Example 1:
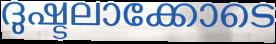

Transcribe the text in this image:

ദുഷ്ടലാക്കോടെ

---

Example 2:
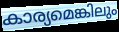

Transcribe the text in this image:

കാര്യമെങ്കിലും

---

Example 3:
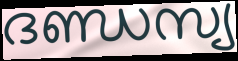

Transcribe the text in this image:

ദണ്ഡസ്യ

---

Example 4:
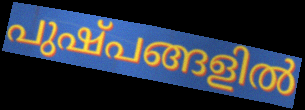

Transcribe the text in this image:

പുഷ്പങ്ങളിൽ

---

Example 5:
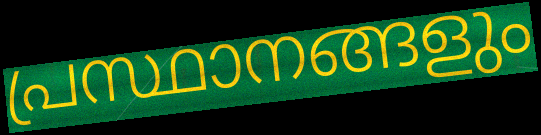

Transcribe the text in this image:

പ്രസ്ഥാനങ്ങളും